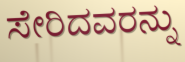
ಸೇರಿದವರನ್ನು